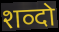
शव्दो